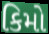
કિમો